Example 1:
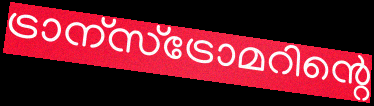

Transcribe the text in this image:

ട്രാന്സ്ട്രോമറിന്റെ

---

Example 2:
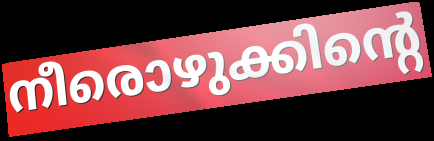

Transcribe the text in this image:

നീരൊഴുക്കിന്റെ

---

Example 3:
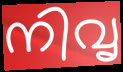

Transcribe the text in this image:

നിവൃ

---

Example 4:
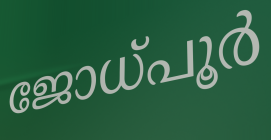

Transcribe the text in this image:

ജോധ്പൂർ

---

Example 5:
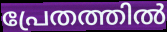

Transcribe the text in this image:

പ്രേതത്തിൽ